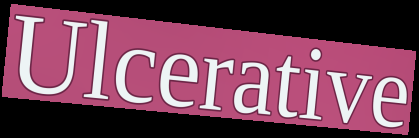
Ulcerative